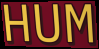
HUM